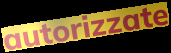
autorizzate